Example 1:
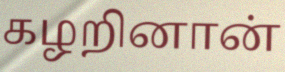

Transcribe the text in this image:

கழறினான்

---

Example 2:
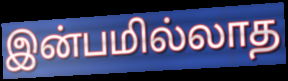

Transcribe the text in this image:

இன்பமில்லாத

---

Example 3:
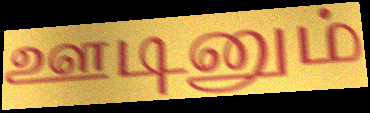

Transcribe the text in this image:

ஊடினும்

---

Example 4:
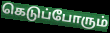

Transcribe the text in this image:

கெடுப்போரும்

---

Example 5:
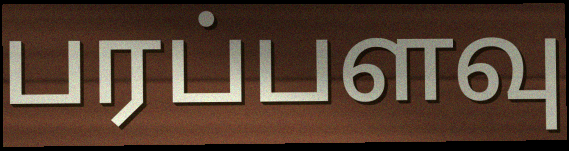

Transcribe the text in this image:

பரப்பளவு